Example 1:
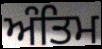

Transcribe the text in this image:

ਅੰਤਿਮ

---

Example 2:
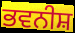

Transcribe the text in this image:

ਭਵਨੀਸ਼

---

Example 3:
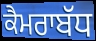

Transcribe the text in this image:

ਕੈਮਰਾਬੱਧ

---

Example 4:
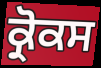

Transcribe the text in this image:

ਕ੍ਰੋਕਸ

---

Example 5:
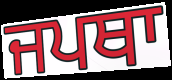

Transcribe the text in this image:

ਜਪਥਾ